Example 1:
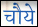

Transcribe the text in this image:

चौये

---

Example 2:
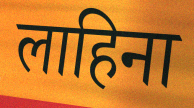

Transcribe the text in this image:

लाहिना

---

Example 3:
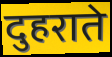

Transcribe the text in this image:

दुहराते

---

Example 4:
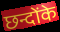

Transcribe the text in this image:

छन्दोंके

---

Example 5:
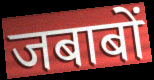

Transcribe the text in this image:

जबाबों